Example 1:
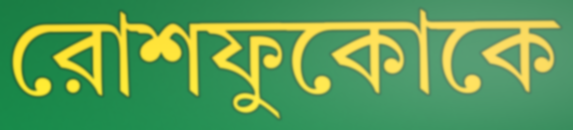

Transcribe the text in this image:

রোশফুকোকে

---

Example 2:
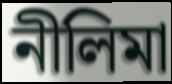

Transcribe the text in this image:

নীলিমা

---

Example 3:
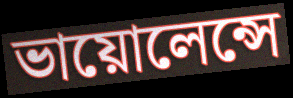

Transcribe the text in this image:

ভায়োলেন্সে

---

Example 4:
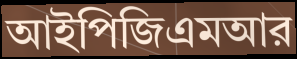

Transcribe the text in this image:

আইপিজিএমআর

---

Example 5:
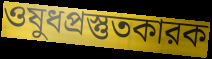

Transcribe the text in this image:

ওষুধপ্রস্তুতকারক